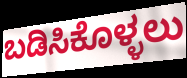
ಬಡಿಸಿಕೊಳ್ಳಲು